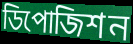
ডিপোজিশন